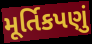
મૂર્તિકપણું